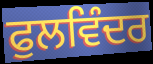
ਫੁਲਵਿੰਦਰ